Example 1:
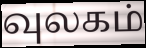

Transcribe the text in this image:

வுலகம்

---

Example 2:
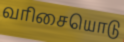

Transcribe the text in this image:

வரிசையொடு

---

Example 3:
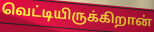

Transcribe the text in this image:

வெட்டியிருக்கிறான்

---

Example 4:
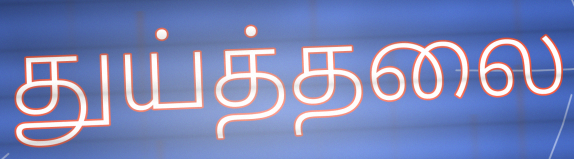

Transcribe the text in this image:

துய்த்தலை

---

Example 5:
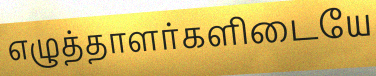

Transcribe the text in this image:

எழுத்தாளர்களிடையே